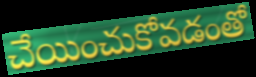
చేయించుకోవడంతో